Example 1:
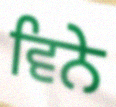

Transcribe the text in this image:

ਵਿਨੇ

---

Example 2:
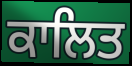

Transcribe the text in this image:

ਕਾਲਿਤ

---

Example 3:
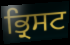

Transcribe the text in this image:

ਭ੍ਰਿਸਟ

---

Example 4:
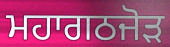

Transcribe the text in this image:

ਮਹਾਗਠਜੋੜ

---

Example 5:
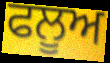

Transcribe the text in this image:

ਫਲੂਅ